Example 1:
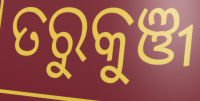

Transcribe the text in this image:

ତରୁକୁଞ୍ଜ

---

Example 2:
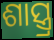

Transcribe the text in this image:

ଶାସ୍ତ୍ର୍ର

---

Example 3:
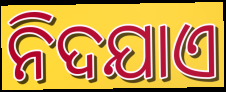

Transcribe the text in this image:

ନିଦଯାଏ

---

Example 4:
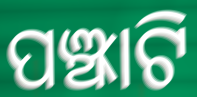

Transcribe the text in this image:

ପଞ୍ଝାଟି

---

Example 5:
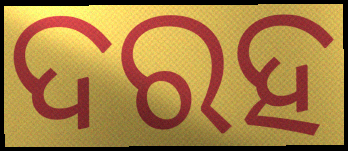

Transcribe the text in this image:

ଦରହ